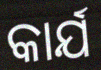
କାର୍ଯ